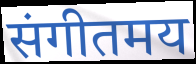
संगीतमय